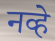
नव्हे